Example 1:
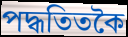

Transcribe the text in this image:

পদ্ধতিতকৈ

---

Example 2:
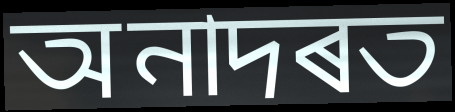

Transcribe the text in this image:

অনাদৰত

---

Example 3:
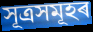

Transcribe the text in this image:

সূত্ৰসমূহৰ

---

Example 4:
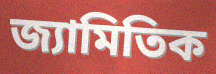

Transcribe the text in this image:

জ্যামিতিক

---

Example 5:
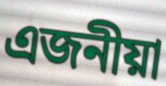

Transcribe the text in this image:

এজনীয়া